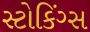
સ્ટોકિંગ્સ